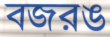
বজরঙ